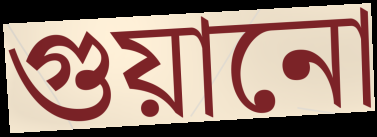
গুয়ানো